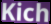
Kich